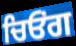
ਚਿਓਂਗ